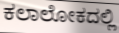
ಕಲಾಲೋಕದಲ್ಲಿ